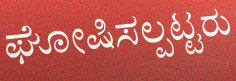
ಘೋಷಿಸಲ್ಪಟ್ಟರು